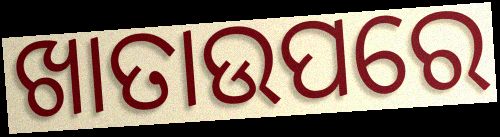
ଖାତାଉପରେ